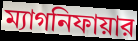
ম্যাগনিফায়ার